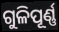
ଗୁଳିପୂର୍ଣ୍ଣ